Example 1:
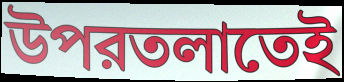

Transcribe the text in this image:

উপরতলাতেই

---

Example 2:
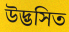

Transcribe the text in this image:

উদ্ভসিত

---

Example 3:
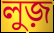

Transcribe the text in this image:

লুজ়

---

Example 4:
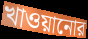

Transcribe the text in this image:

খাওয়ানোর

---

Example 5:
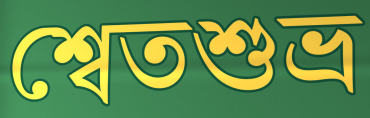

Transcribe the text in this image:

শ্বেতশুভ্র